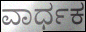
ವಾರ್ಧಕ